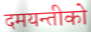
दमयन्तीको